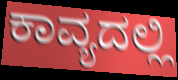
ಕಾವ್ಯದಲ್ಲಿ